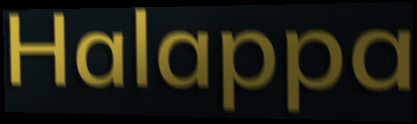
Halappa